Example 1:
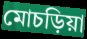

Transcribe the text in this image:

মোচড়িয়া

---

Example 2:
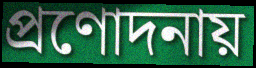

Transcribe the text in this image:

প্রণোদনায়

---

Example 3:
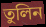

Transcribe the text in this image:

তুলিন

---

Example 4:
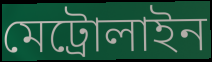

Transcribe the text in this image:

মেট্রোলাইন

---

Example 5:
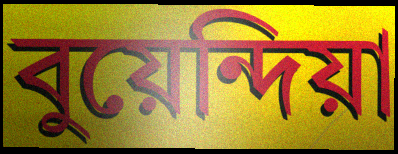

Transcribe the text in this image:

বুয়েন্দিয়া